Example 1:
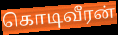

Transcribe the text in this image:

கொடிவீரன்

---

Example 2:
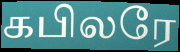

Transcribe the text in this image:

கபிலரே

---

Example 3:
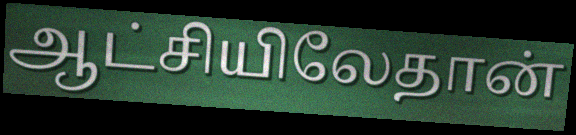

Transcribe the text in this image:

ஆட்சியிலேதான்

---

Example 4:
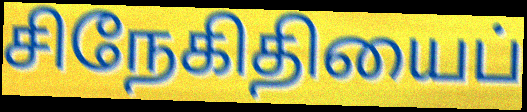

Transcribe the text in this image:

சிநேகிதியைப்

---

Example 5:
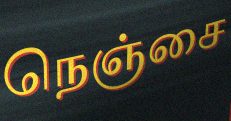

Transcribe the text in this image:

நெஞ்சை